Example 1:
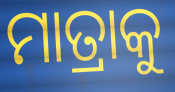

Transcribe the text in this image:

ମାତ୍ରାକୁ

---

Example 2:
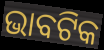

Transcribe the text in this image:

ଭାବଟିକ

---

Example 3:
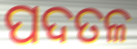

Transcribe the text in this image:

ପଦତଳ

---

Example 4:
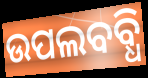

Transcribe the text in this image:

ଉପଲବବ୍ଧି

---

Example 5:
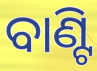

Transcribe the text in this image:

ବାଣ୍ଟି